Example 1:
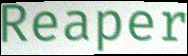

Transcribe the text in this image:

Reaper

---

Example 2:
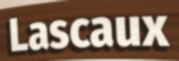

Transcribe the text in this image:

Lascaux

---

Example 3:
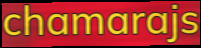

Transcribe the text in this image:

chamarajs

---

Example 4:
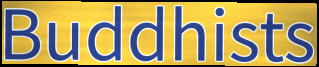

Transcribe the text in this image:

Buddhists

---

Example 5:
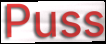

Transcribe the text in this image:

Puss